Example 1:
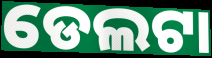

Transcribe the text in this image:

ଡେଲଟା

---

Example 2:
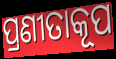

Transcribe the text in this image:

ପ୍ରଣୀତାକୂପ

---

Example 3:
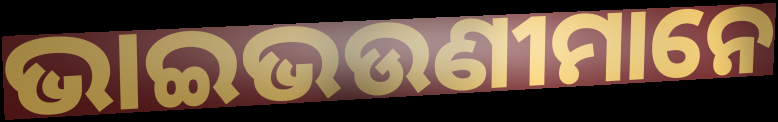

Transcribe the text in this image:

ଭାଇଭଉଣୀମାନେ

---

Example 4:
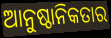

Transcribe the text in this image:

ଆନୁଷ୍ଠାନିକତାର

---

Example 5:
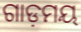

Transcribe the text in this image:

ଗାଡ଼ମୟ